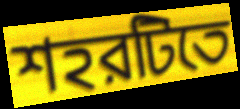
শহরটিতে